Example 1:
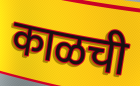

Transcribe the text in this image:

काळची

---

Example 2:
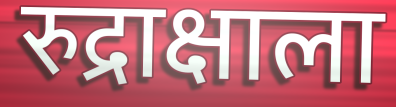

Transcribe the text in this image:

रुद्राक्षाला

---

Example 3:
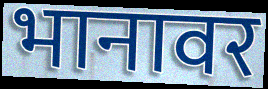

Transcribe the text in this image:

भानावर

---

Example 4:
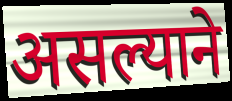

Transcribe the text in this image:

असल्‍याने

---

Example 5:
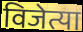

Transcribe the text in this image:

विजेत्या